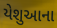
યેશુઆના